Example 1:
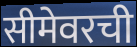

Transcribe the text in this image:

सीमेवरची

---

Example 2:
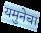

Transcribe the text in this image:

यमुनेचा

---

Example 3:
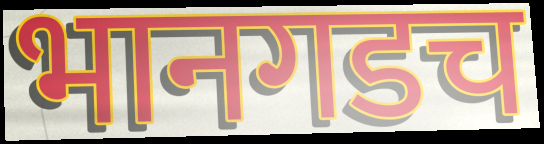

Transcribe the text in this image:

भानगडच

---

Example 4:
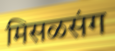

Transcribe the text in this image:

मिसळसंग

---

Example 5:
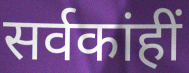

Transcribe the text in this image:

सर्वकांहीं